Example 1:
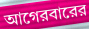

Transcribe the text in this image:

আগেরবারের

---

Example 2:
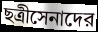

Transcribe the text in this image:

ছত্রীসেনাদের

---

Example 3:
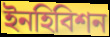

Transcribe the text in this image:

ইনহিবিশন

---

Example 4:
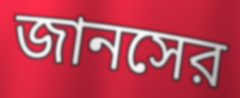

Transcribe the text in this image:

জানসের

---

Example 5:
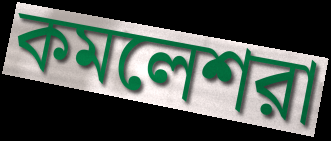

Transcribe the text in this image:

কমলেশরা